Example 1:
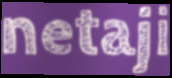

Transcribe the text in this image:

netaji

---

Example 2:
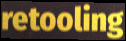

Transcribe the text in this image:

retooling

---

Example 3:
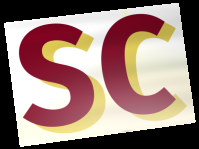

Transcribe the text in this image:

sc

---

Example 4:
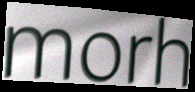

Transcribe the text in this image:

morh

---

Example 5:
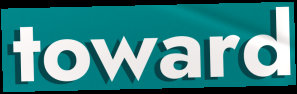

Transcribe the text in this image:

toward